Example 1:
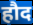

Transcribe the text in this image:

हौद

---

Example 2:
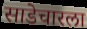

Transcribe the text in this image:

साडेचारला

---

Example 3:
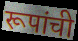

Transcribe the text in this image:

रूपांची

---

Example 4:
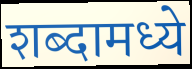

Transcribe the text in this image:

शब्दामध्ये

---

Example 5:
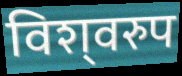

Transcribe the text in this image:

विश्वरुप